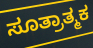
ಸೂತ್ರಾತ್ಮಕ